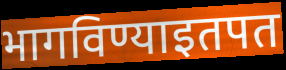
भागविण्याइतपत